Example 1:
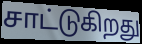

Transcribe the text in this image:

சாட்டுகிறது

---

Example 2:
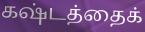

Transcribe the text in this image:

கஷ்டத்தைக்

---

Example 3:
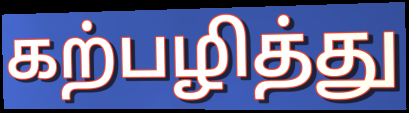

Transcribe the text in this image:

கற்பழித்து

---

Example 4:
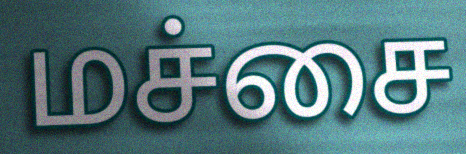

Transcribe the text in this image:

மச்சை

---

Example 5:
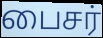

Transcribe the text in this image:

பைசர்